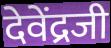
देवेंद्रजी